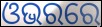
ଓଭରରେ